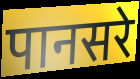
पानसरे